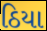
ઠિયા